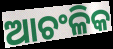
ଆଚଂଳିକ